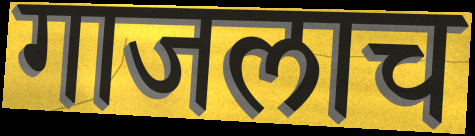
गाजलाच